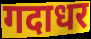
गदाधर